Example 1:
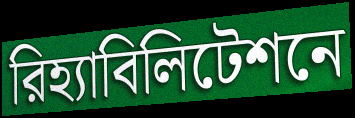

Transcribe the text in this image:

রিহ্যাবিলিটেশনে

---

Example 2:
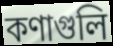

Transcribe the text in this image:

কণাগুলি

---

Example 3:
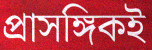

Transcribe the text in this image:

প্রাসঙ্গিকই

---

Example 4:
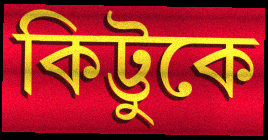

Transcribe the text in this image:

কিট্টুকে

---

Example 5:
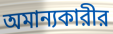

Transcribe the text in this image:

অমান্যকারীর